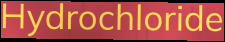
Hydrochloride